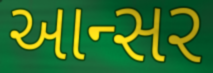
આન્સર